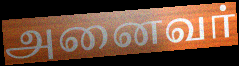
அனைவர்